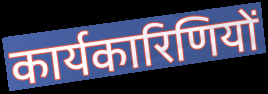
कार्यकारिणियों